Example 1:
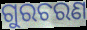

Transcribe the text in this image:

ଗୁରଚରଣ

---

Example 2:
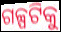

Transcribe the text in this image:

ଗଳ୍ପଟିକୁ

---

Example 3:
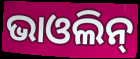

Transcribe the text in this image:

ଭାଓଲିନ୍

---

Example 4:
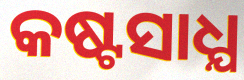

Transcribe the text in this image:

କଷ୍ଟସାଧ୍ଯ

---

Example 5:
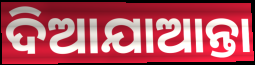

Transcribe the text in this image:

ଦିଆଯାଆନ୍ତା